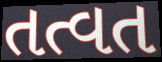
તત્વત